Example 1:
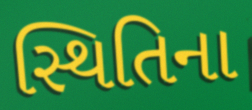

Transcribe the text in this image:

સ્થિતિના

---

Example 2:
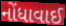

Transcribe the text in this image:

નોંધાવાઈ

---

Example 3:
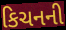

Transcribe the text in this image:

કિચનની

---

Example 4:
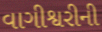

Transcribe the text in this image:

વાગીશ્વરીની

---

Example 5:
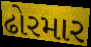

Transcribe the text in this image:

ઢોરમાર